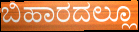
ಬಿಹಾರದಲ್ಲೂ